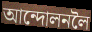
আন্দোলনলৈ